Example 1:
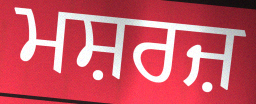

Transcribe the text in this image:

ਮਸ਼ਰਜ਼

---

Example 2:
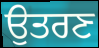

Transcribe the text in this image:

ਉਤਰਣ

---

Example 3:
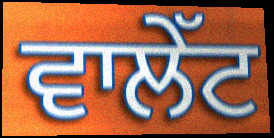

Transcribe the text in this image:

ਵਾਲੇੱਟ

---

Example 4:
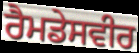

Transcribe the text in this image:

ਰੈਮਡੇਸਵੀਰ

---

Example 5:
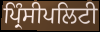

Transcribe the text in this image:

ਪ੍ਰਿੰਸੀਪਲਿਟੀ